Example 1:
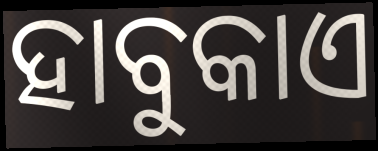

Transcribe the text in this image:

ହାବୁକାଏ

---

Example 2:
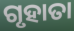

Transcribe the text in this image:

ଗୃହାତା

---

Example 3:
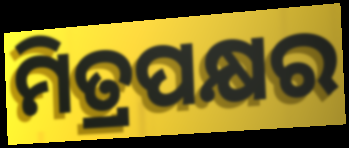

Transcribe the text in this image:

ମିତ୍ରପକ୍ଷର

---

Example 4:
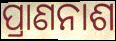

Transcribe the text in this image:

ପ୍ରାଣନାଶ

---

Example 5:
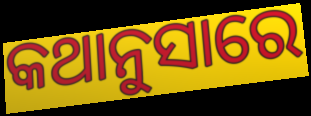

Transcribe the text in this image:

କଥାନୁସାରେ